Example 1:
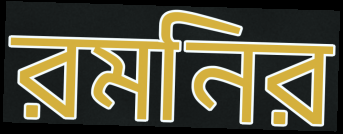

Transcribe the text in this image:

রমনির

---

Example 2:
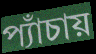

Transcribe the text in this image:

প্যাঁচায়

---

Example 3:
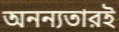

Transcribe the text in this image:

অনন্যতারই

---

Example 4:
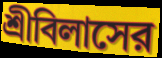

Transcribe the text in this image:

শ্রীবিলাসের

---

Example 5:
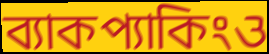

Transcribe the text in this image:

ব্যাকপ্যাকিংও